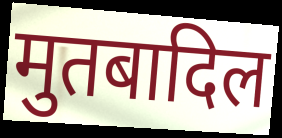
मुतबादिल